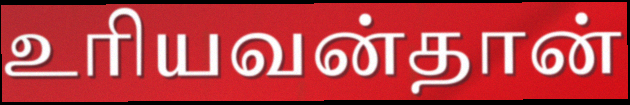
உரியவன்தான்